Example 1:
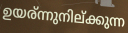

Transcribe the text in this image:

ഉയര്ന്നുനില്ക്കുന്ന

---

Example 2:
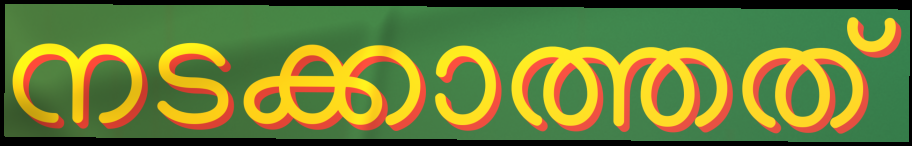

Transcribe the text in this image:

നടക്കാത്തത്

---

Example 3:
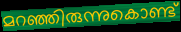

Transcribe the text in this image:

മറഞ്ഞിരുന്നുകൊണ്ട്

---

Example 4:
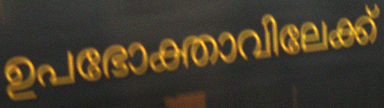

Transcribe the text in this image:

ഉപഭോക്താവിലേക്ക്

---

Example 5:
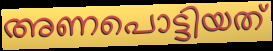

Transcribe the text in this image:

അണപൊട്ടിയത്